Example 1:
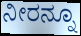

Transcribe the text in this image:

ನೀರನ್ನೂ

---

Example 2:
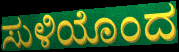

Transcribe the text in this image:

ಸುಳಿಯೊಂದ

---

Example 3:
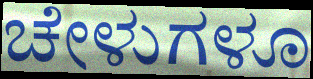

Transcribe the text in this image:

ಚೇಳುಗಳೂ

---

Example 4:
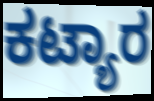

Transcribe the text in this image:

ಕಟ್ಯಾರ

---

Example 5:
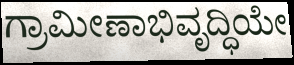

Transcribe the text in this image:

ಗ್ರಾಮೀಣಾಭಿವೃದ್ಧಿಯೇ